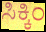
ಸಿಕ್ಕಿಂ